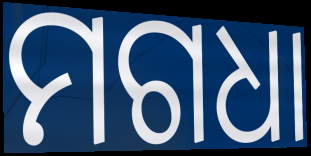
ମଗଧା